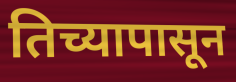
तिच्यापासून